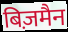
बिज़मैन